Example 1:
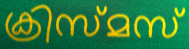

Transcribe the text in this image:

ക്രിസ്മസ്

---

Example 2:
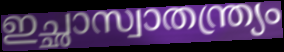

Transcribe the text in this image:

ഇച്ഛാസ്വാതന്ത്ര്യം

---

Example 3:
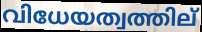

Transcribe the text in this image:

വിധേയത്വത്തില്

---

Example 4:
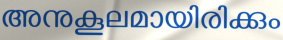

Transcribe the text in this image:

അനുകൂലമായിരിക്കും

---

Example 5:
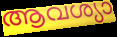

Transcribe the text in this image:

ആവശ്യാ